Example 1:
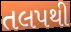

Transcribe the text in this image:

તલપથી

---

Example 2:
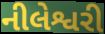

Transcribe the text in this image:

નીલેશ્વરી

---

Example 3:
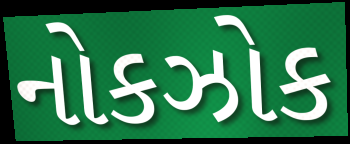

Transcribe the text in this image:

નોકઝોક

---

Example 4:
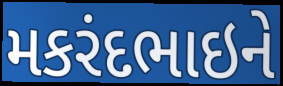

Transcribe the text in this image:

મકરંદભાઇને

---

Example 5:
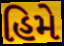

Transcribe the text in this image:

હિમે